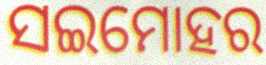
ସଇମୋହର